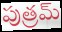
పుత్రమ్